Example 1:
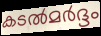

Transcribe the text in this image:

കടൽമർദ്ദം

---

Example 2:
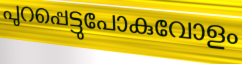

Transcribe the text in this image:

പുറപ്പെട്ടുപോകുവോളം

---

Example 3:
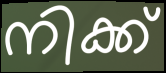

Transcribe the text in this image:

നിക്ക്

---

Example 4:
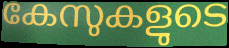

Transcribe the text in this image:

കേസുകളുടെ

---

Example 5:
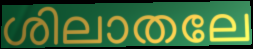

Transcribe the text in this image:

ശിലാതലേ